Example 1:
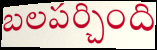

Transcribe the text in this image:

బలపర్చింది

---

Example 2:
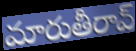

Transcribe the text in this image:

మారుతీరావ్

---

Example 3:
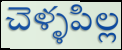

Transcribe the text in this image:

చెళ్ళపిల్ల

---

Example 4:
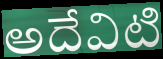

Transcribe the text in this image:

అదేవిటి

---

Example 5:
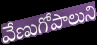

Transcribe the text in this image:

వేణుగోపాలుని